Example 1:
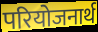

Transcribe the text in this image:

परियोजनार्थ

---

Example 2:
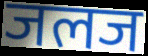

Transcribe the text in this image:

जलज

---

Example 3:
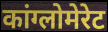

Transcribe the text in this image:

कांग्लोमेरेट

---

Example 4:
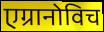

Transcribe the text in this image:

एग्रानोविच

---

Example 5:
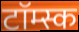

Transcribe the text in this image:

टॉम्स्क